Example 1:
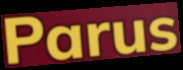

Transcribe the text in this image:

Parus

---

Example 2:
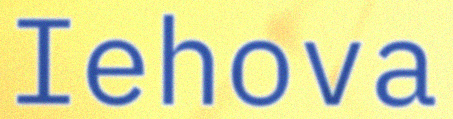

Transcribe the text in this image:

Iehova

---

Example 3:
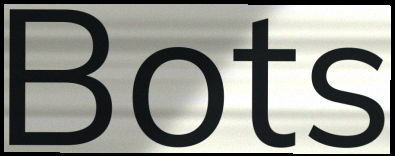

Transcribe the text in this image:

Bots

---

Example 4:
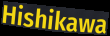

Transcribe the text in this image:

Hishikawa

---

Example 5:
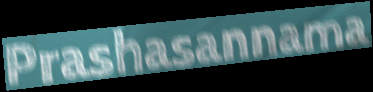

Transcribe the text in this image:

Prashasannama